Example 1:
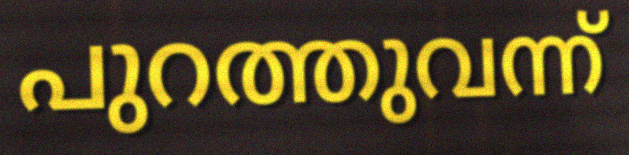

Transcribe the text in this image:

പുറത്തുവന്ന്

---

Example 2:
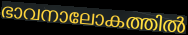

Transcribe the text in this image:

ഭാവനാലോകത്തിൽ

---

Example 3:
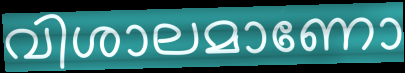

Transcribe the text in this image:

വിശാലമാണോ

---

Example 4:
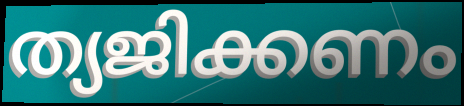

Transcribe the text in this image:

ത്യജിക്കണം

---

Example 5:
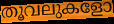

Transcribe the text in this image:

തൂവലുകളോ